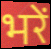
भरें